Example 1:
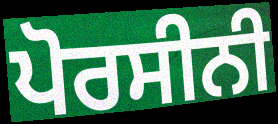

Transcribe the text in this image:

ਪੋਰਸੀਨੀ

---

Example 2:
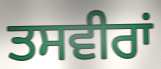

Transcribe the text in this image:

ਤਸਵੀਰਾਂ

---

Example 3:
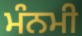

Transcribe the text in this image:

ਮੰਨਮੀ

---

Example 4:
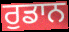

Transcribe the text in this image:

ਰੁਡਾਨ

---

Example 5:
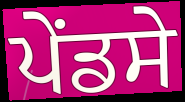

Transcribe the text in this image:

ਪੇਂਡਸੇ